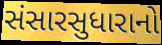
સંસારસુધારાનો